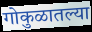
गोकुळातल्या